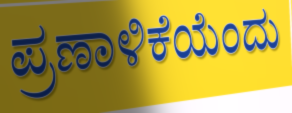
ಪ್ರಣಾಳಿಕೆಯೆಂದು